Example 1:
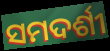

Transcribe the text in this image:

ସମଦର୍ଶୀ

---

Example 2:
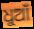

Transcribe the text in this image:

ଧୁଆଁ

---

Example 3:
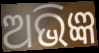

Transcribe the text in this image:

ଅଭିଜ୍ଞ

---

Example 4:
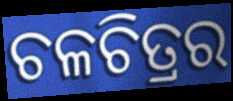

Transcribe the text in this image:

ଚଳଚିତ୍ରର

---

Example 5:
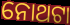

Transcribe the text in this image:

ନୋଥଟା